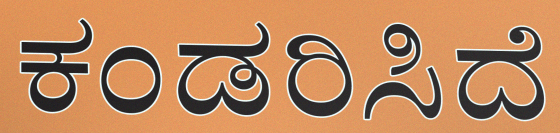
ಕಂಡರಿಸಿದೆ